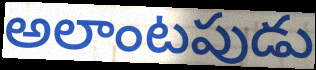
అలాంటపుడు